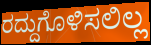
ರದ್ದುಗೊಳಿಸಲಿಲ್ಲ